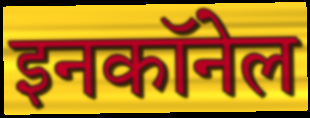
इनकॉनेल